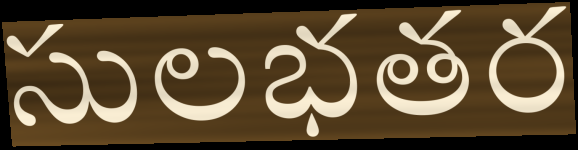
సులభతర